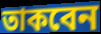
তাকবেন